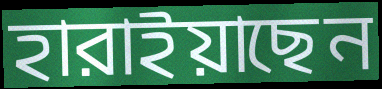
হারাইয়াছেন